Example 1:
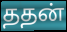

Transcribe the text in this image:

ததன்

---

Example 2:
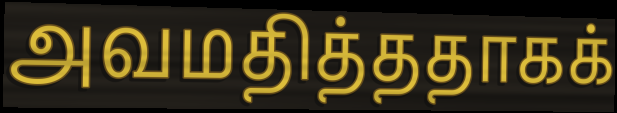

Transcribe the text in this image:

அவமதித்ததாகக்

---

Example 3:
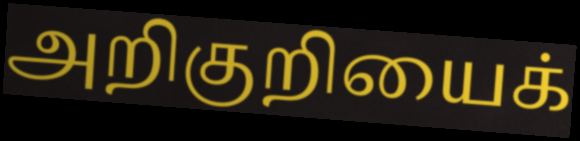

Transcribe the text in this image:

அறிகுறியைக்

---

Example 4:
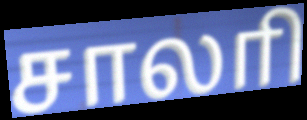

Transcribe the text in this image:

சாலரி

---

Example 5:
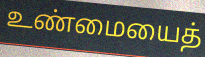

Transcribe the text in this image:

உண்மையைத்